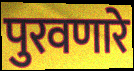
पुरवणारे